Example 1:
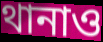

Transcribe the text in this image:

থানাও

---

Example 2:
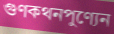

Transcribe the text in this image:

গুণকথনপুণ্যেন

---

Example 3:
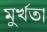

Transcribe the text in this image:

মুর্খতা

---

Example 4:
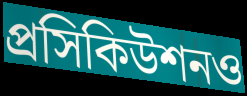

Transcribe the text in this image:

প্রসিকিউশনও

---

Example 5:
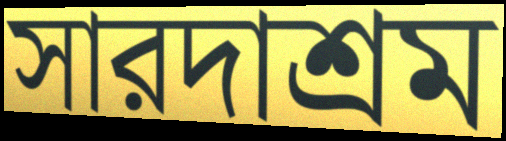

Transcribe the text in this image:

সারদাশ্রম